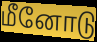
மீனோடு